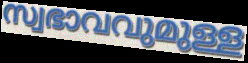
സ്വഭാവവുമുള്ള